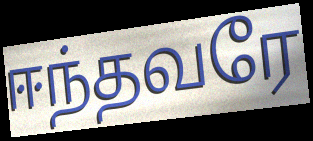
ஈந்தவரே